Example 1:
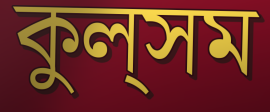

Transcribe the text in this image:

কুল্‌সম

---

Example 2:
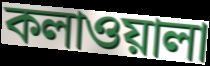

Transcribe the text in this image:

কলাওয়ালা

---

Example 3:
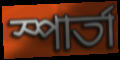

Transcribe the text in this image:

স্পার্তা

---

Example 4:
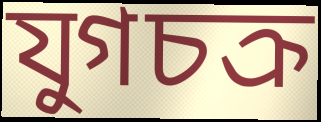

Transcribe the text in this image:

যুগচক্র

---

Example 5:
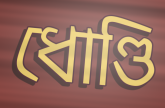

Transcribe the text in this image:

ধোণ্ডি